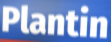
Plantin